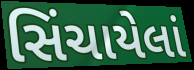
સિંચાયેલાં